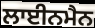
ਲਾਈਨਮੈਨ